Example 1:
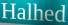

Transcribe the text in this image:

Halhed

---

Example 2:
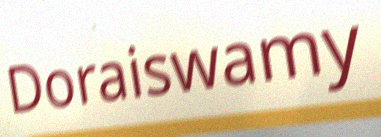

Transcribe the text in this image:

Doraiswamy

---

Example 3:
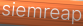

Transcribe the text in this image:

siemreap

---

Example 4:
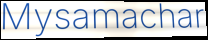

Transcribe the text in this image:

Mysamachar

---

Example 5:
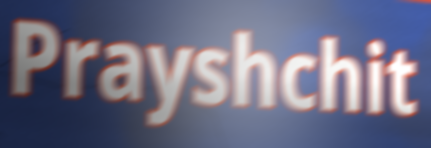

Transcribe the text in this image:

Prayshchit